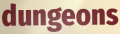
dungeons